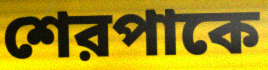
শেরপাকে